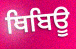
ਥਿਬਿਊ